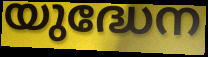
യുദ്ധേന